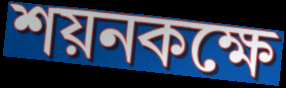
শয়নকক্ষে